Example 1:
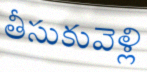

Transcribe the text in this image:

తీసుకువెళ్లి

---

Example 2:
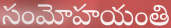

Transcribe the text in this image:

సంమోహయంతి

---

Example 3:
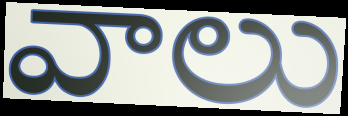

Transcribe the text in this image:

వాలు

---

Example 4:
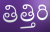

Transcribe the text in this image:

తిత్తిరి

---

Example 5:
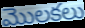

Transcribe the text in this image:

మొలకలు